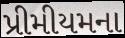
પ્રીમીયમના